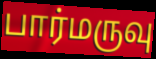
பார்மருவு